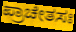
ಪ್ರಾಚೇತಸಃ